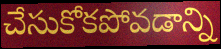
చేసుకోకపోవడాన్ని